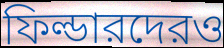
ফিল্ডারদেরও